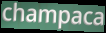
champaca